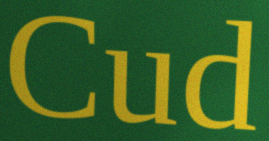
Cud